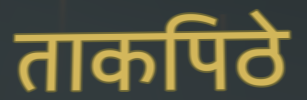
ताकपिठे